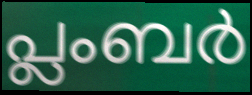
പ്ലംബർ